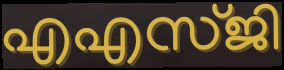
എഎസ്ജി